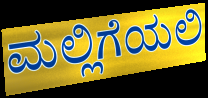
ಮಲ್ಲಿಗೆಯಲಿ